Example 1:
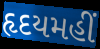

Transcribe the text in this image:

હૃદયમહીં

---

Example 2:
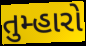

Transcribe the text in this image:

તુમ્હારો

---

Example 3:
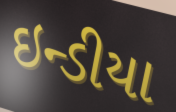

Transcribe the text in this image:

ઇન્ડીયા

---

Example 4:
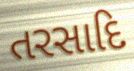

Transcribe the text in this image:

તરસાદિ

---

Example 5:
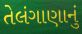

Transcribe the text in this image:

તેલંગાણાનું